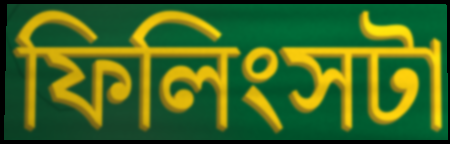
ফিলিংসটা